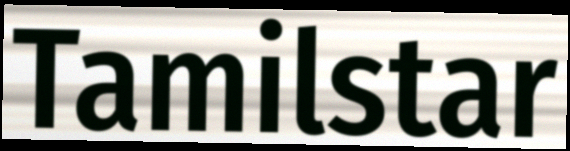
Tamilstar